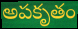
అపకృతం